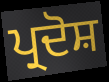
ਪ੍ਰਦੋਸ਼